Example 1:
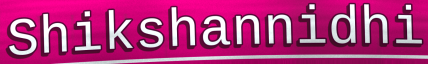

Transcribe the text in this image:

Shikshannidhi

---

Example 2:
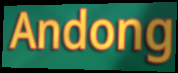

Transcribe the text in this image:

Andong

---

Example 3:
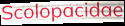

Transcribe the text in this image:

Scolopacidae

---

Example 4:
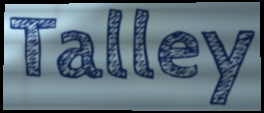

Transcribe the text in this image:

Talley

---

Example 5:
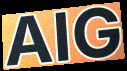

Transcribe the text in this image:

AIG